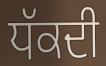
ਧੱਕਦੀ